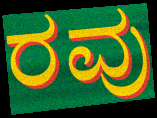
ರವು